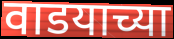
वाडयाच्या